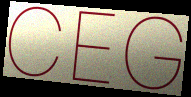
CEG